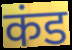
कंड